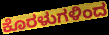
ಕೊರಳುಗಳಿಂದ